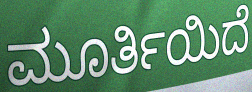
ಮೂರ್ತಿಯಿದೆ